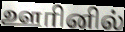
ஊரினில்